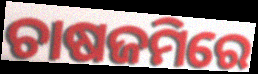
ଚାଷଜମିରେ